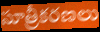
సూత్రీకరణలు